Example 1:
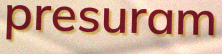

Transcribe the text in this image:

presuram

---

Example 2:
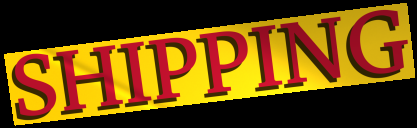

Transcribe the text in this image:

SHIPPING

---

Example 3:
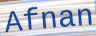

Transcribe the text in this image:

Afnan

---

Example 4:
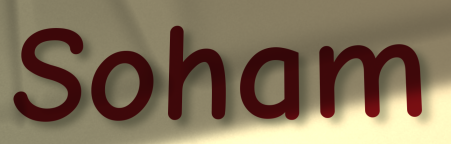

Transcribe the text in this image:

Soham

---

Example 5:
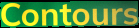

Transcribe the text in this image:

Contours